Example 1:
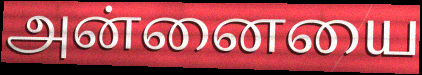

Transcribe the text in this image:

அன்னையை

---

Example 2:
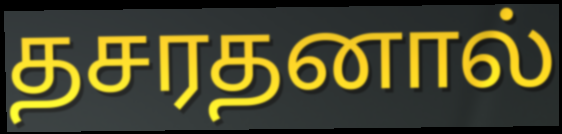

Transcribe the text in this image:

தசரதனால்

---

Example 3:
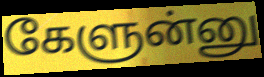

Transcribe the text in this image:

கேளுன்னு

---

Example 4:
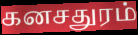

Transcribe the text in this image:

கனசதுரம்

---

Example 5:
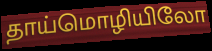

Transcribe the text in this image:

தாய்மொழியிலோ